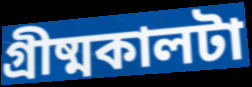
গ্রীষ্মকালটা